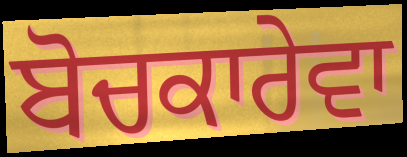
ਬੋਚਕਾਰੇਵਾ